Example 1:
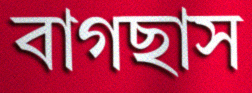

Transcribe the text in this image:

বাগছাস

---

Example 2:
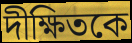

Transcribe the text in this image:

দীক্ষিতকে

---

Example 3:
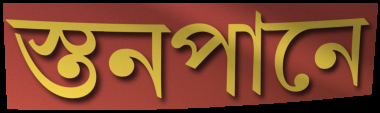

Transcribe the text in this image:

স্তনপানে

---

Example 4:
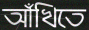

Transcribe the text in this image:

আঁখিতে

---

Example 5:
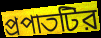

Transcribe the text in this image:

প্রপাতটির